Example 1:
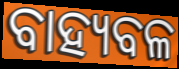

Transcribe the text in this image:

ବାହ୍ୟବଳ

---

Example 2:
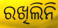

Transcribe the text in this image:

ରଖିଲିନି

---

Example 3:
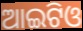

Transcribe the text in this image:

ଆଇଟିଓ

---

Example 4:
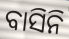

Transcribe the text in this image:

ବାସିନି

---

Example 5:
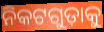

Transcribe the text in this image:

ନିକଟଗୁଡ଼ାକୁ